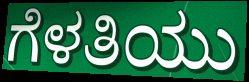
ಗೆಳತಿಯು